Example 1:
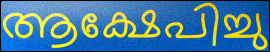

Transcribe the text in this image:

ആക്ഷേപിച്ചു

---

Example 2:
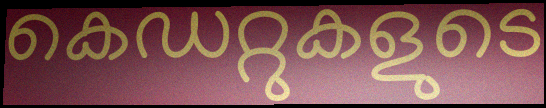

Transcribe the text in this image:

കെഡറ്റുകളുടെ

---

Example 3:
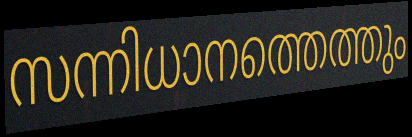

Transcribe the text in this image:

സന്നിധാനത്തെത്തും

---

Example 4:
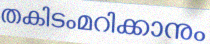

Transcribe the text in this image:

തകിടംമറിക്കാനും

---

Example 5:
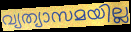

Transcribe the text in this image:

വ്യത്യാസമയില്ല